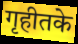
गृहीतके